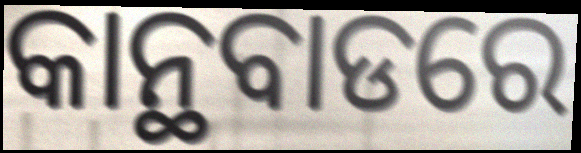
କାନ୍ଥବାଡରେ